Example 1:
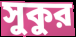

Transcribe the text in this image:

সুকুর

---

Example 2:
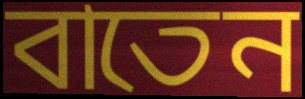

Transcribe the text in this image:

বাতেন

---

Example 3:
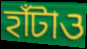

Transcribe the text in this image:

হাঁটাও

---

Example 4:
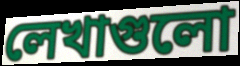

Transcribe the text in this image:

লেখাগুলো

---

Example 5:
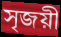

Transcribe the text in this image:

সৃজয়ী